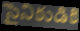
సైనికుడికి